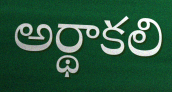
అర్థాకలి